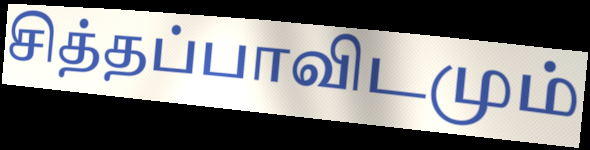
சித்தப்பாவிடமும்